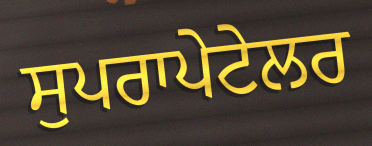
ਸੁਪਰਾਪੇਟੇਲਰ